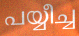
പയ്യീച്ച